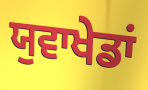
ਯੁਵਾਖੇਡਾਂ